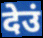
देउं